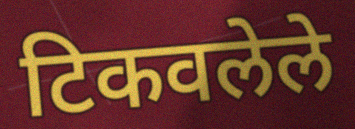
टिकवलेले